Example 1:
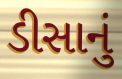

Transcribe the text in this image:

ડીસાનું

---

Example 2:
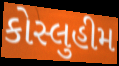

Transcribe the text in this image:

કોસ્લુહીમ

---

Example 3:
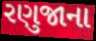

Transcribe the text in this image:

રણુજાના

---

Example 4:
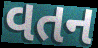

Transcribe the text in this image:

વતન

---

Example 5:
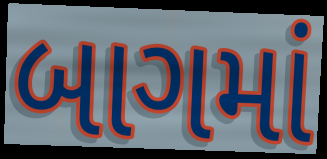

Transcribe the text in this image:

બાગમાં